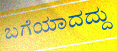
ಬಗೆಯಾದದ್ದು